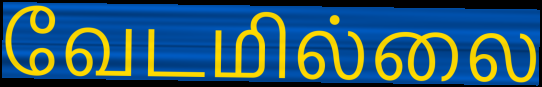
வேடமில்லை